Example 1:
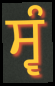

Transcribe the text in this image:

ਸ੍ਵੰ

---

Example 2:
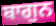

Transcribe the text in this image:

ਬਾਗੁਨ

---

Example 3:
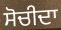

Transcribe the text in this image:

ਸੋਚੀਦਾ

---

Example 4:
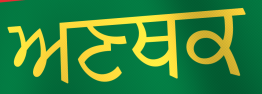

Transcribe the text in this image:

ਅਣਥਕ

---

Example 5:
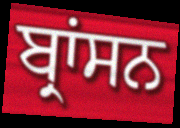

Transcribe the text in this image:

ਬ੍ਰਾਂਸਨ